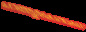
പറഞ്ഞതുകൊണ്ടാകുമോ